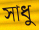
সাধু